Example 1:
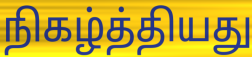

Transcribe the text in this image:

நிகழ்த்தியது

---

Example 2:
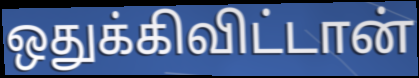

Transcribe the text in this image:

ஒதுக்கிவிட்டான்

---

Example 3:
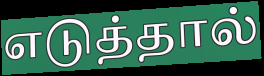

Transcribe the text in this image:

எடுத்தால்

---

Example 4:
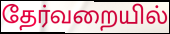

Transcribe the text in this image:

தேர்வறையில்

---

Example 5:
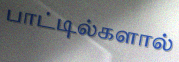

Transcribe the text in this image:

பாட்டில்களால்